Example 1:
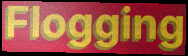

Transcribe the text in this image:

Flogging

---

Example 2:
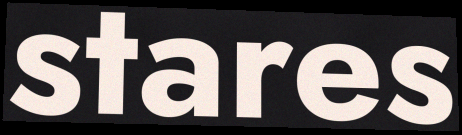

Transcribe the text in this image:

stares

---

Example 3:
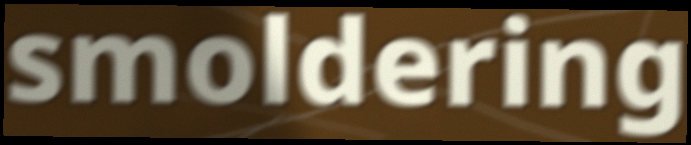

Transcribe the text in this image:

smoldering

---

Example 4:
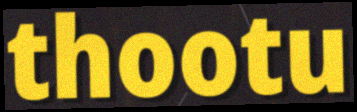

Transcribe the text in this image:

thootu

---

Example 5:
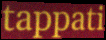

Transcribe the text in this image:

tappati